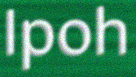
Ipoh